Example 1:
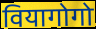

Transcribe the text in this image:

वियागोगो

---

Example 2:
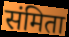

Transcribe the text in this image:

संमिता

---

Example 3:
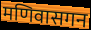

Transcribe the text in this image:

मणिवासगन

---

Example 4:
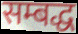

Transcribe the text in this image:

सम्बद्ध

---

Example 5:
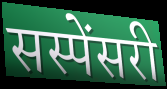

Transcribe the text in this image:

सस्पेंसरी